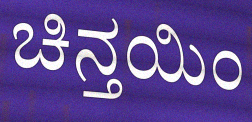
ಚಿನ್ತಯಿಂ